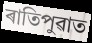
ৰাতিপুৱাত